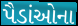
પૈડાંઓના